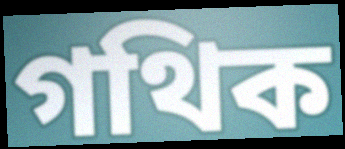
গথিক